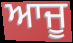
ਆਜੂ